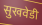
सुखवेडी